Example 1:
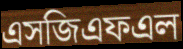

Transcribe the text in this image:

এসজিএফএল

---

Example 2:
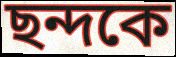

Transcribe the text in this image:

ছন্দকে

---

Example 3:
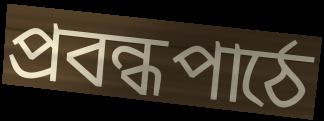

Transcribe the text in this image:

প্রবন্ধপাঠে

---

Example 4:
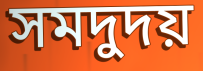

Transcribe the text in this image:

সমদুদয়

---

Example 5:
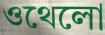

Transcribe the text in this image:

ওথেলো